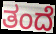
ತಂದೆ